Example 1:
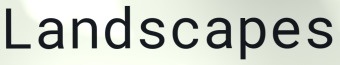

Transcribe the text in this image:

Landscapes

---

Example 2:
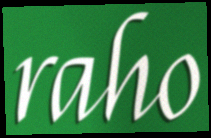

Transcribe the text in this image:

raho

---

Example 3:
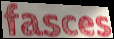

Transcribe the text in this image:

fasces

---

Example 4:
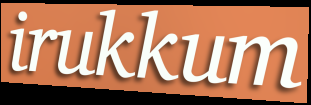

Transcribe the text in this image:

irukkum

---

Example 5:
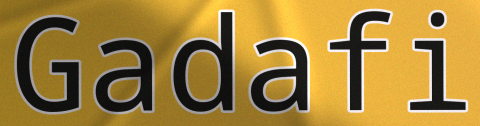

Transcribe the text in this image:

Gadafi